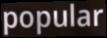
popular